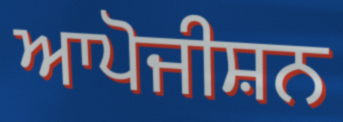
ਆਪੋਜੀਸ਼ਨ